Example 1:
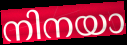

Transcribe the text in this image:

നിനയാ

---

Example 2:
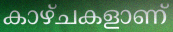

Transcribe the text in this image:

കാഴ്ചകളാണ്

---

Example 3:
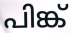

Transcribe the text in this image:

പിങ്ക്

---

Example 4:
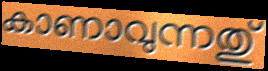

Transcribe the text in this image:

കാണാവുന്നതു്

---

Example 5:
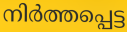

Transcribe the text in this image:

നിർത്തപ്പെട്ട